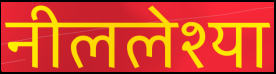
नीललेश्या